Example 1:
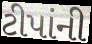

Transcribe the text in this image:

ટીપાંની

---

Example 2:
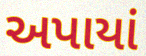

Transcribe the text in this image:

અપાયાં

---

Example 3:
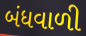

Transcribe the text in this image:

બંધવાળી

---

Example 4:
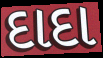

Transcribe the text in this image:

દાદા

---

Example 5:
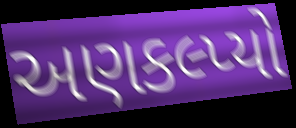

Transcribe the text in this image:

અણકલ્પ્યો